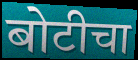
बोटीचा